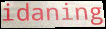
idaning